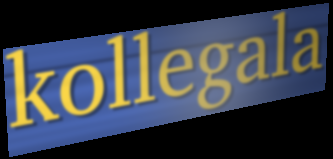
kollegala